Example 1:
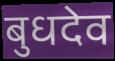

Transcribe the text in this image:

बुधदेव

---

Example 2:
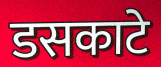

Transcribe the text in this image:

डसकाटे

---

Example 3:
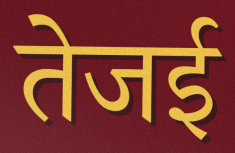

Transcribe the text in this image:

तेजई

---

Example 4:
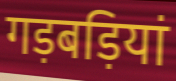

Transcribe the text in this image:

गड़बड़ियां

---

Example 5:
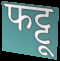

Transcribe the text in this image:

फट्टू